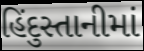
હિંદુસ્તાનીમાં